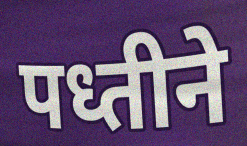
पध्तीने